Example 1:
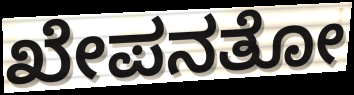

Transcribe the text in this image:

ಖೇಪನತೋ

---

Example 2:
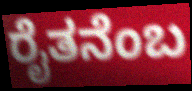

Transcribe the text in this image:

ರೈತನೆಂಬ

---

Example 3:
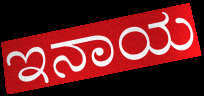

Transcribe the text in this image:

ಇನಾಯ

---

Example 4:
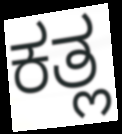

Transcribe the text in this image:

ಕತ್ಲ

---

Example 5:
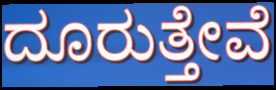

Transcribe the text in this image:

ದೂರುತ್ತೇವೆ